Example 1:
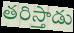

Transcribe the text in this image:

తరిస్తాడు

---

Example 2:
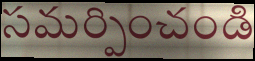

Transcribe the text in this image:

సమర్పించండి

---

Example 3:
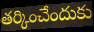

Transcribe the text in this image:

తర్కించేందుకు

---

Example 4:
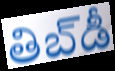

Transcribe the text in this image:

తిబ్‌డీ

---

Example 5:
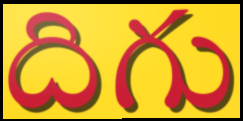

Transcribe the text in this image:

దిగు